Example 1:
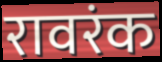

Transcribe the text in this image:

रावरंक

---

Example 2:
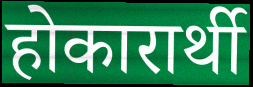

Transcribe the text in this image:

होकारार्थी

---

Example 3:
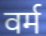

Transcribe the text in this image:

वर्म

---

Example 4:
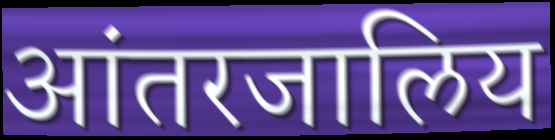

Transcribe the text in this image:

आंतरजालिय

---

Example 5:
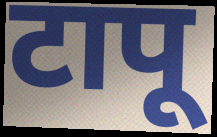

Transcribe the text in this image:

टापू